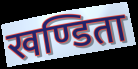
खण्डिता